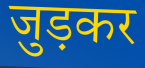
जुड़कर